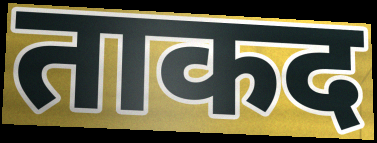
ताकद